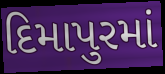
દિમાપુરમાં